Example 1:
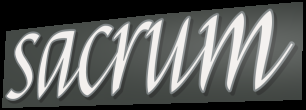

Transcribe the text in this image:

sacrum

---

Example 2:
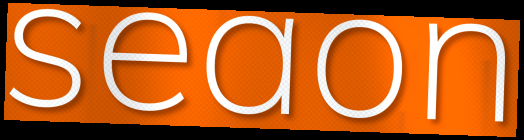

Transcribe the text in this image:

seaon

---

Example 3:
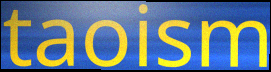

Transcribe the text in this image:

taoism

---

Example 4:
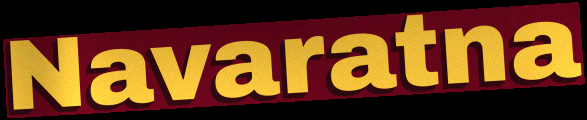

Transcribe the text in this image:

Navaratna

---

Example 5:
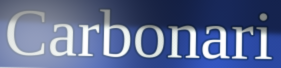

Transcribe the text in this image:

Carbonari